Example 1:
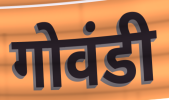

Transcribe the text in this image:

गोवंडी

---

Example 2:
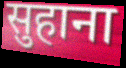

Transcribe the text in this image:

सुहाना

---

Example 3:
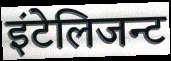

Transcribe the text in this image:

इंटेलिजन्ट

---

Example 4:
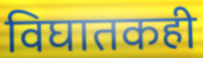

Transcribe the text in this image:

विघातकही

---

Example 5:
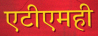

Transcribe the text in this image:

एटीएमही